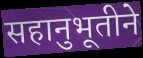
सहानुभूतीने